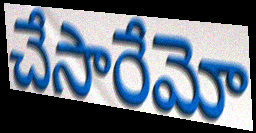
చేసారేమో